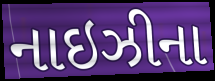
નાઇઝીના